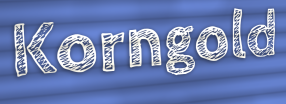
Korngold